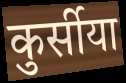
कुर्सीया